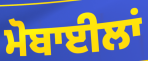
ਮੋਬਾਈਲਾਂ